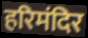
हरिमंदिर